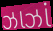
ઝાઝાં